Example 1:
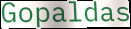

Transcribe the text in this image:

Gopaldas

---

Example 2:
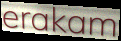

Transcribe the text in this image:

erakam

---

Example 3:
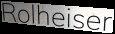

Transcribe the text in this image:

Rolheiser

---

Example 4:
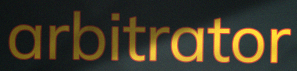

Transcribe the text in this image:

arbitrator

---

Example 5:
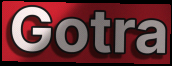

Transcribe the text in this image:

Gotra